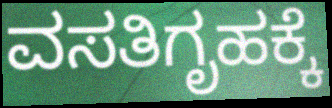
ವಸತಿಗೃಹಕ್ಕೆ